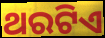
ଥରଟିଏ